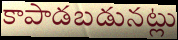
కాపాడబడునట్లు